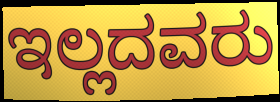
ಇಲ್ಲದವರು